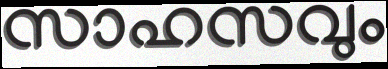
സാഹസവും